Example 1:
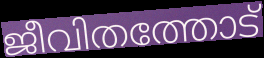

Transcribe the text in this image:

ജീവിതത്തോട്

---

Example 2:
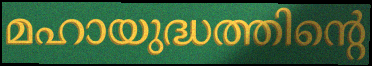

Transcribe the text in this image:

മഹായുദ്ധത്തിന്റെ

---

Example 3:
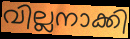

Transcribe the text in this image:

വില്ലനാക്കി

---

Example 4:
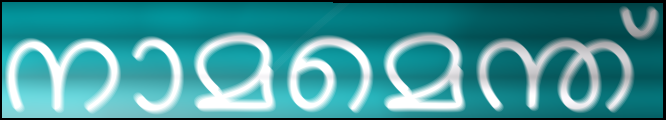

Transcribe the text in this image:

നാമമെന്ത്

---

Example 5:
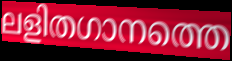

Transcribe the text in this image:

ലളിതഗാനത്തെ